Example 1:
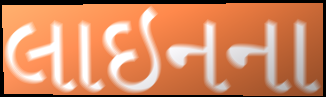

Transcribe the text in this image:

લાઇનના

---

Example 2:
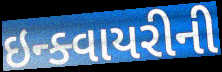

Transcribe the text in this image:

ઇન્ક્વાયરીની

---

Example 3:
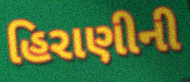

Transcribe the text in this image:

હિરાણીની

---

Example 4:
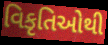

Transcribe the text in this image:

વિકૃતિઓથી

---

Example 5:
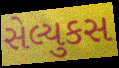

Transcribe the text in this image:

સેલ્યુકસ